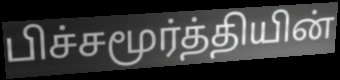
பிச்சமூர்த்தியின்